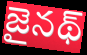
జైనథ్